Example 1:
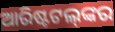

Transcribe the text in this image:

ଆରିଷ୍ଟଟଲ୍‌ଙ୍କର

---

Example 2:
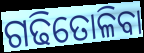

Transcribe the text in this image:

ଗଢିତୋଳିବା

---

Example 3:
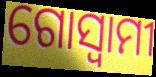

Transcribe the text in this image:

ଗୋସ୍ୱାମୀ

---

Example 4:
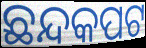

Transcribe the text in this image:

ଛନ୍ଦକପଟ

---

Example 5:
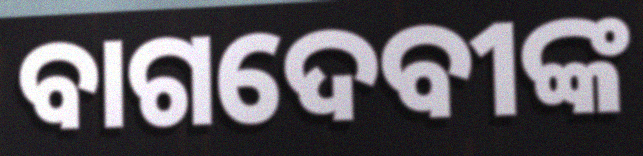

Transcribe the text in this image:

ବାଗଦେବୀଙ୍କ